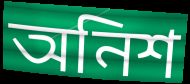
অনিশ